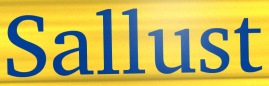
Sallust